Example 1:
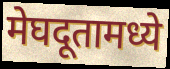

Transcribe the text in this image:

मेघदूतामध्ये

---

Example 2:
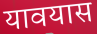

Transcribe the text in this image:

यावयास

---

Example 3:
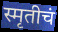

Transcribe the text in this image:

स्मृतीचं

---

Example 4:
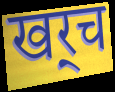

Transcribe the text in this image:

खर्च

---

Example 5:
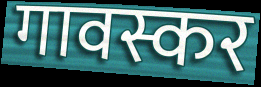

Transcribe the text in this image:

गावस्कर